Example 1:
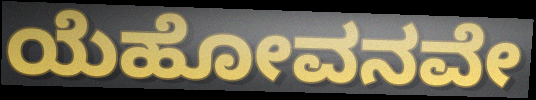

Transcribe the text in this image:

ಯೆಹೋವನವೇ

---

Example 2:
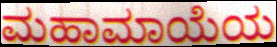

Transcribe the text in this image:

ಮಹಾಮಾಯೆಯ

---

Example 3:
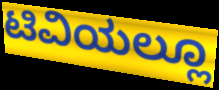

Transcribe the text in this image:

ಟಿವಿಯಲ್ಲೂ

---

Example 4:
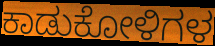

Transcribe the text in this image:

ಕಾಡುಕೋಳಿಗಳ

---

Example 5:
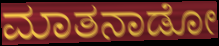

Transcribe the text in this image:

ಮಾತನಾಡೋ